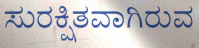
ಸುರಕ್ಷಿತವಾಗಿರುವ